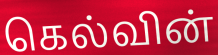
கெல்வின்